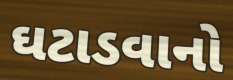
ઘટાડવાનો